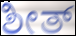
ಶೀತ್